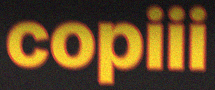
copiii